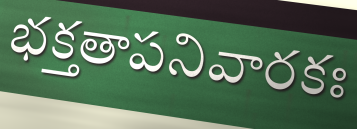
భక్తతాపనివారకః